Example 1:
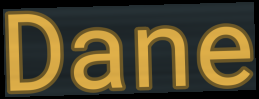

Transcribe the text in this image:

Dane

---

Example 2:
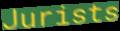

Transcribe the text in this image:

Jurists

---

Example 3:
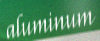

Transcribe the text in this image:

aluminum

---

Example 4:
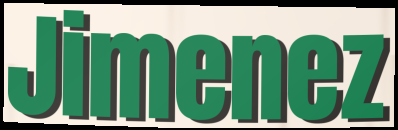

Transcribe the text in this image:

Jimenez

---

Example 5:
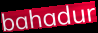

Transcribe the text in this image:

bahadur